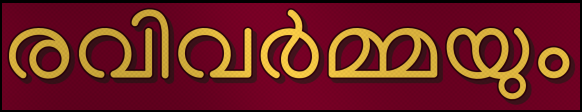
രവിവർമ്മയും